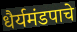
धैर्यमंडपाचे